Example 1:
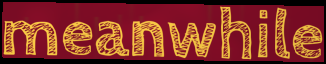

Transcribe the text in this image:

meanwhile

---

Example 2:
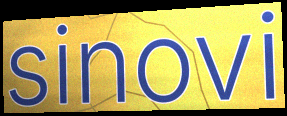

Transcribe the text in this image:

sinovi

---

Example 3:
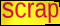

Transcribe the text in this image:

scrap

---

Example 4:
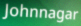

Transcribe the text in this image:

Johnnagar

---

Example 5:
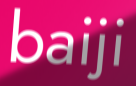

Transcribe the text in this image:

baiji